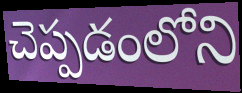
చెప్పడంలోని